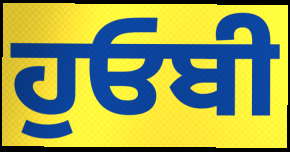
ਹੁਓਬੀ